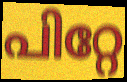
പിറ്റേ